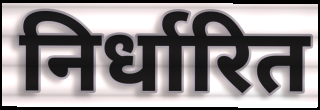
निर्धारित